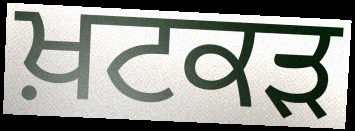
ਖ਼ਟਕੜ